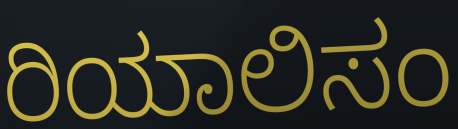
ರಿಯಾಲಿಸಂ